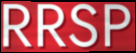
RRSP